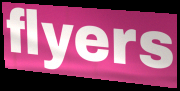
flyers